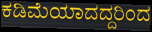
ಕಡಿಮೆಯಾದದ್ದರಿಂದ